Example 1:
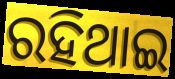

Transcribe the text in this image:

ରହିଥାଇ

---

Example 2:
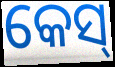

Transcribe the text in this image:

କେସ୍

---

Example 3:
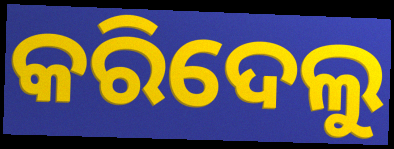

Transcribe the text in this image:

କରିଦେଲୁ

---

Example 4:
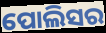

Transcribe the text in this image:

ପୋଲିସର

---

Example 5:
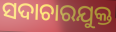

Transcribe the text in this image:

ସଦାଚାରଯୁକ୍ତ